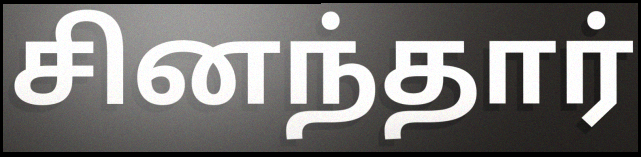
சினந்தார்